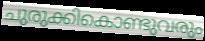
ചുരുക്കികൊണ്ടുവരും